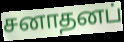
சனாதனப்